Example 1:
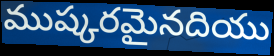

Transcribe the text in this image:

ముష్కరమైనదియు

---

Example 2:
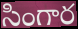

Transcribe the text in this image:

సింగార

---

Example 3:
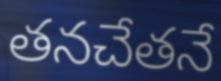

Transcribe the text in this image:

తనచేతనే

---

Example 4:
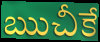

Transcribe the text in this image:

ఋచీకే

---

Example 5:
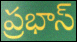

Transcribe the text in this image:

ప్రభాస్